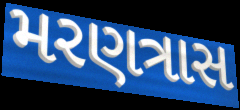
મરણત્રાસ